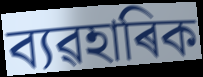
ব্যৱহাৰিক